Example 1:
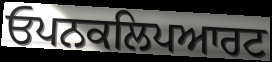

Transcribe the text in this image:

ਓਪਨਕਲਿਪਆਰਟ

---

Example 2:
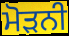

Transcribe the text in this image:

ਮੋੜਨੀ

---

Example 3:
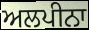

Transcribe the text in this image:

ਅਲਪੀਨਾ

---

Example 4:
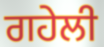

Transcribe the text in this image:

ਗਹੇਲੀ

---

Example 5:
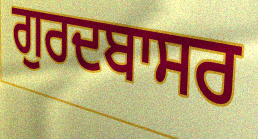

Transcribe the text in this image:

ਗੁਰਦਬਾਸਰ